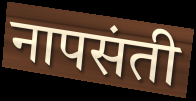
नापसंती